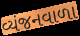
વ્યંજનવાળા